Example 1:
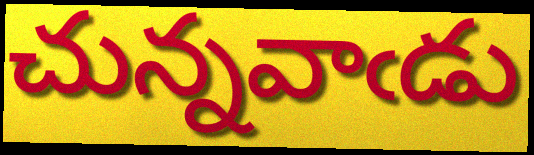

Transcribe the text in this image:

చున్నవాఁడు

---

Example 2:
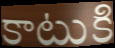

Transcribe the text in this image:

కాటుకి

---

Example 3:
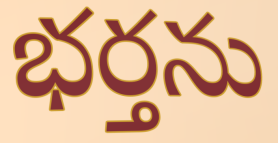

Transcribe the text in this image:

భర్తను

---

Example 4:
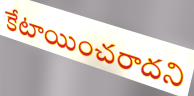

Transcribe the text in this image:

కేటాయించరాదని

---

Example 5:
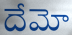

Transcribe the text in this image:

దేమో